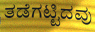
ತಡೆಗಟ್ಟಿದವು